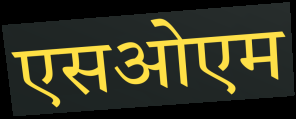
एसओएम